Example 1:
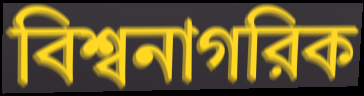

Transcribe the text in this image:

বিশ্বনাগরিক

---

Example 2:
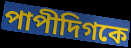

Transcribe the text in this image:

পাপীদিগকে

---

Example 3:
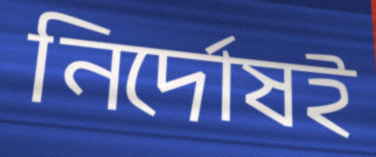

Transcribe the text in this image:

নির্দোষই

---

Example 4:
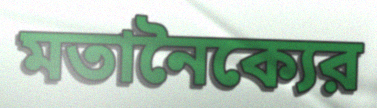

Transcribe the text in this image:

মতানৈক্যের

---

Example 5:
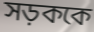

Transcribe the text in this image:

সড়ককে